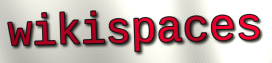
wikispaces